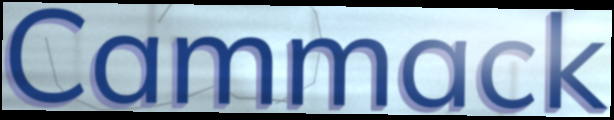
Cammack